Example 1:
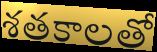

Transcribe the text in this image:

శతకాలతో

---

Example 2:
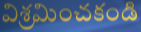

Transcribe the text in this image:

విశ్రమించకండి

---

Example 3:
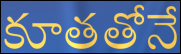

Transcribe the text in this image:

కూతతోనే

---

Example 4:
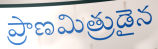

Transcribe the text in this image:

ప్రాణమిత్రుడైన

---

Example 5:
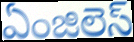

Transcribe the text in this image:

ఏంజిలెస్